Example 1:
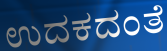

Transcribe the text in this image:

ಉದಕದಂತೆ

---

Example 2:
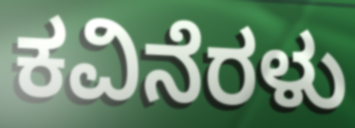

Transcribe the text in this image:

ಕವಿನೆರಳು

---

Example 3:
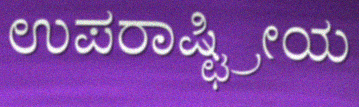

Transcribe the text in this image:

ಉಪರಾಷ್ಟ್ರೀಯ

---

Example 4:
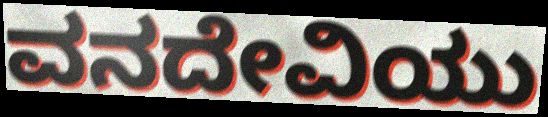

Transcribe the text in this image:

ವನದೇವಿಯು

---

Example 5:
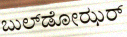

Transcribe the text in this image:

ಬುಲ್‌ಡೋಝರ್